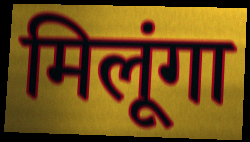
मिलूंगा